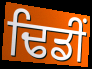
ਢਿਡੀਂ